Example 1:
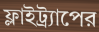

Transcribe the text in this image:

ফ্লাইট্র্যাপের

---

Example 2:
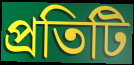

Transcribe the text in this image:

প্রতিটি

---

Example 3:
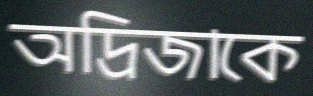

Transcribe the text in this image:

অদ্রিজাকে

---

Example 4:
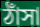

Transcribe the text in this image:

ঠাঁসা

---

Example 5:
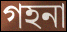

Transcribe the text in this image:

গহনা